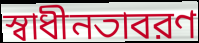
স্বাধীনতাবরণ